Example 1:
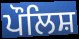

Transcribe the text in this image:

ਪੌਲਿਸ਼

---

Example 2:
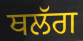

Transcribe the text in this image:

ਥਲੱਗ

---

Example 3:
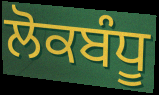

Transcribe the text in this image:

ਲੋਕਬੰਧੂ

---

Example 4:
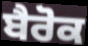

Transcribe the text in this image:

ਬੈਰੋਕ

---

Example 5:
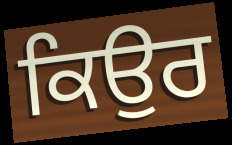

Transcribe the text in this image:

ਕਿਉਰ